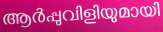
ആർപ്പുവിളിയുമായി